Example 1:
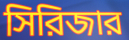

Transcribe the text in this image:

সিরিজার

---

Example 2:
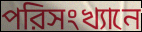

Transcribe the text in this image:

পরিসংখ্যানে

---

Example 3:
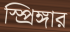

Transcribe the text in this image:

স্প্রিঙ্গার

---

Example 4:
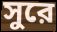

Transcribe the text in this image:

সুরে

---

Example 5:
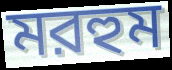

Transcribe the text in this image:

মরহুম